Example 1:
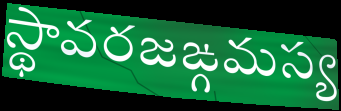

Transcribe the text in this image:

స్థావరజఙ్గమస్య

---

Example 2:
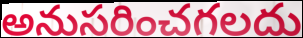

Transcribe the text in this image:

అనుసరించగలదు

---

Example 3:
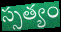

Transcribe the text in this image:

స్సత్యం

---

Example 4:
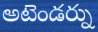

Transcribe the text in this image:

అటెండర్ను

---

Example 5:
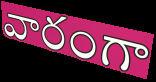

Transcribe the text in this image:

వారంగా